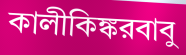
কালীকিঙ্করবাবু